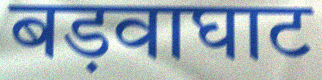
बड़वाघाट